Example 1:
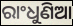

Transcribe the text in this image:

ରାଂଧୁଣିଆ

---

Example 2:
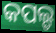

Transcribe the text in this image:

କପଲ୍ଡ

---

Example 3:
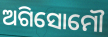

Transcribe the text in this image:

ଅଗିସୋମୌ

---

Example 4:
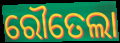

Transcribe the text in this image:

ରୌତେଲା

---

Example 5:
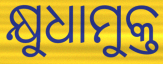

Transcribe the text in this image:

କ୍ଷୁଧାମୁକ୍ତ